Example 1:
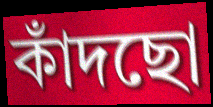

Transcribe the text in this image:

কাঁদছো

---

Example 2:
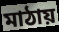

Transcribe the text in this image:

মাঠায়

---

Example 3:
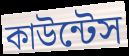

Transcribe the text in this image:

কাউন্টেস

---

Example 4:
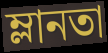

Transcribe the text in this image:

ম্লানতা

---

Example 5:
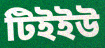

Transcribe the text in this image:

টিইইউ